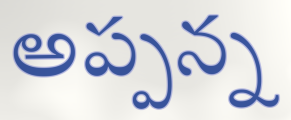
అప్పన్న